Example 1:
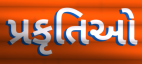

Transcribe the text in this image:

પ્રકૃતિઓ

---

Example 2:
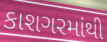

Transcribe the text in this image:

કાશગરમાંથી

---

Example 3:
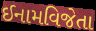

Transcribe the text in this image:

ઈનામવિજેતા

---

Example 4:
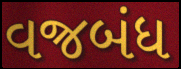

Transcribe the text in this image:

વજ્રબંધ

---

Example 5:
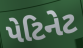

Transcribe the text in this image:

પેટિનેટ